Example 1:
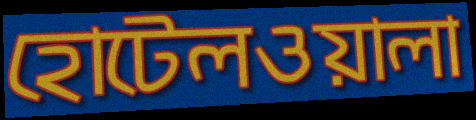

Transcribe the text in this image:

হোটেলওয়ালা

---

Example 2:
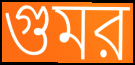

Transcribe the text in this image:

গুমর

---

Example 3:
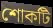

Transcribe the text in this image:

শোকটি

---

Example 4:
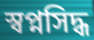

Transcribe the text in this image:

স্বপ্নসিদ্ধ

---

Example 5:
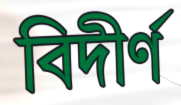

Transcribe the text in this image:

বিদীর্ণ